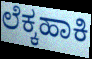
ಲೆಕ್ಕಹಾಕಿ